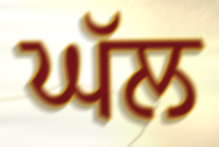
ਘੱਲ